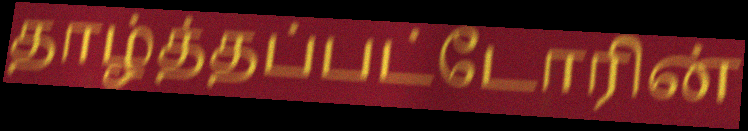
தாழ்த்தப்பட்டோரின்